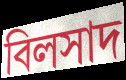
বিলসাদ